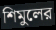
শিমুলের